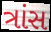
ત્રાંસ